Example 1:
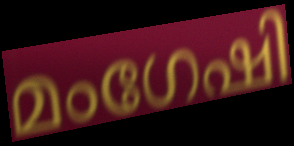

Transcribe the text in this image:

മംഗേഷി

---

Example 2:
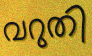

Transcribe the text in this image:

വറുതി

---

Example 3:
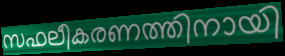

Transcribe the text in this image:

സഫലീകരണത്തിനായി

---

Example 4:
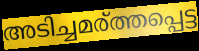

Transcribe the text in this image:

അടിച്ചമര്ത്തപ്പെട്ട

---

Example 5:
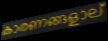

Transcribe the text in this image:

കാരണങ്ങളാല്